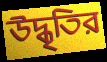
উদ্ধৃতির